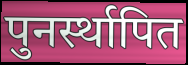
पुनर्स्‍थापित